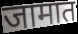
जामात